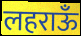
लहराऊँ